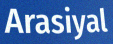
Arasiyal